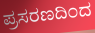
ಪ್ರಸರಣದಿಂದ